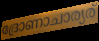
ദ്രോണാചാര്യര്